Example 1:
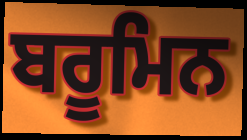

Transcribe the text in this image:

ਬਰੂਮਿਨ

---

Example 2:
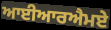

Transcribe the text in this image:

ਆਈਆਰਐਮਏ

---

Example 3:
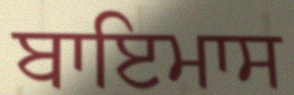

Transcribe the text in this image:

ਬਾਇਮਾਸ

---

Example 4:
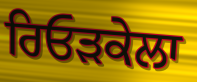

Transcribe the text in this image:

ਰਿਓੜਕੇਲਾ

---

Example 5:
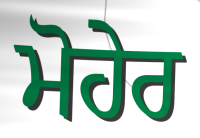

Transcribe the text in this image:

ਮੋਹੇਰ